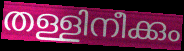
തള്ളിനീക്കും